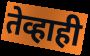
तेव्हाही